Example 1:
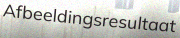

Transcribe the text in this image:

Afbeeldingsresultaat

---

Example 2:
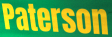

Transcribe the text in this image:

Paterson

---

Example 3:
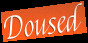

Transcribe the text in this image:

Doused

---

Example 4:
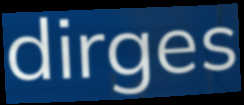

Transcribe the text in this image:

dirges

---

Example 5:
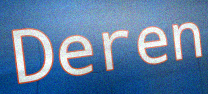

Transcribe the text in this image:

Deren